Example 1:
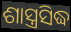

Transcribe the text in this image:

ଶାସ୍ତ୍ରସିଦ୍ଧ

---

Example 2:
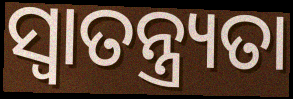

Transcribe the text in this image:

ସ୍ୱାତନ୍ତ୍ର୍ୟତା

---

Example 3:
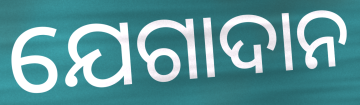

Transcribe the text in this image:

ଯେଗାଦାନ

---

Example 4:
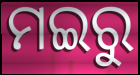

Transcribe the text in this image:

ମଇରୁ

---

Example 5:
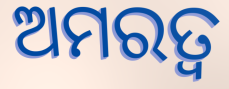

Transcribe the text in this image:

ଅମରତ୍ଵ